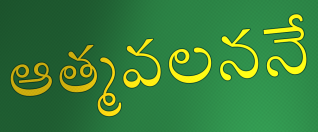
ఆత్మవలననే